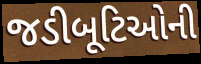
જડીબૂટિઓની